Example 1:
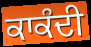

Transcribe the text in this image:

ਕਾਕੰਦੀ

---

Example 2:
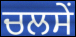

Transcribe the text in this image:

ਚਲਸੇਂ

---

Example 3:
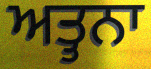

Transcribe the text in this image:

ਅਤ੍ਤਨਾ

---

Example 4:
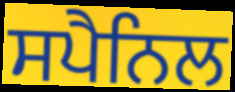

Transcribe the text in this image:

ਸਪੈਨਿਲ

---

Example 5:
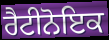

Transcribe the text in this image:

ਰੈਟੀਨੋਇਕ